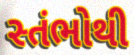
સ્તંભોથી